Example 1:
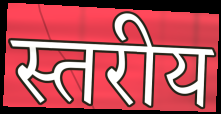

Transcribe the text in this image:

स्तरीय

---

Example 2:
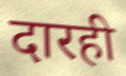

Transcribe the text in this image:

दारही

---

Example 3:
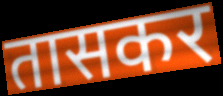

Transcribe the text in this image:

तासकर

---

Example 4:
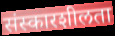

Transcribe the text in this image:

संस्कारशीलता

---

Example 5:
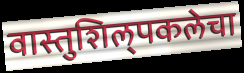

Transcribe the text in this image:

वास्तुशिल्पकलेचा